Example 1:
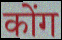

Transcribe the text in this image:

कोंग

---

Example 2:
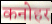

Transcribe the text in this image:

कनोहर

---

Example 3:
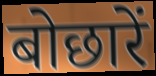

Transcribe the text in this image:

बोछारें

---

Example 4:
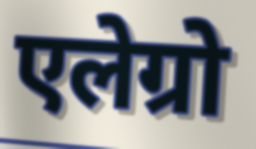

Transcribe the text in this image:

एलेग्रो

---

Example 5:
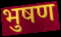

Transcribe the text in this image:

भुषण